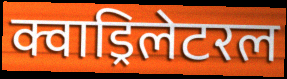
क्वाड्रिलेटरल